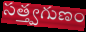
సత్త్వగుణం